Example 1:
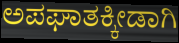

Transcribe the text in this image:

ಅಪಘಾತಕ್ಕೀಡಾಗಿ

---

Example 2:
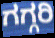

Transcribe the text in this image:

ಗಗ್ಗರಿ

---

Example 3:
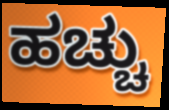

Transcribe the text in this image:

ಹಚ್ಚು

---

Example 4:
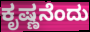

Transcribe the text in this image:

ಕೃಷ್ಣನೆಂದು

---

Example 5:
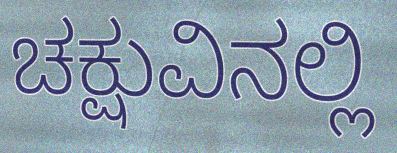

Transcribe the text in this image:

ಚಕ್ಷುವಿನಲ್ಲಿ